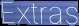
Extras